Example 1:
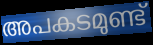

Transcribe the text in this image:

അപകടമുണ്ട്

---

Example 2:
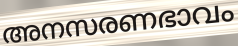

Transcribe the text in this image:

അനസരണഭാവം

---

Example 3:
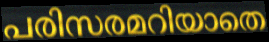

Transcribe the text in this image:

പരിസരമറിയാതെ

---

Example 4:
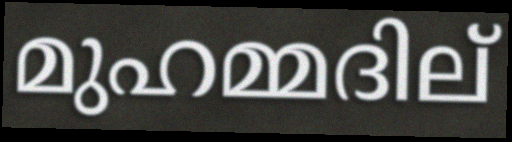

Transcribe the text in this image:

മുഹമ്മദില്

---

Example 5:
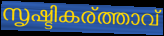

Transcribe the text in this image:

സൃഷ്ടികര്ത്താവ്